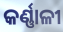
କର୍ଣ୍ଣାଳୀ